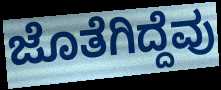
ಜೊತೆಗಿದ್ದೆವು